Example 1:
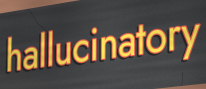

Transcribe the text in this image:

hallucinatory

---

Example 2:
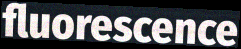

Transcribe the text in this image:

fluorescence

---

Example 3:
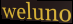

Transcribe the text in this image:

weluno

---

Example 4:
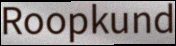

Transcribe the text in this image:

Roopkund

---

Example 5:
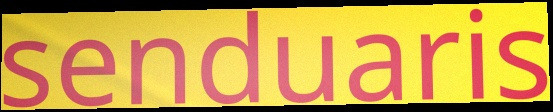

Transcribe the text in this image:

senduaris